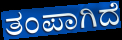
ತಂಪಾಗಿದೆ